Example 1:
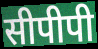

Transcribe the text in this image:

सीपीपी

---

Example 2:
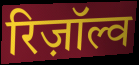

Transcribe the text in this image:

रिज़ॉल्व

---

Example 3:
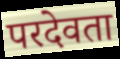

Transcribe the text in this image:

परदेवता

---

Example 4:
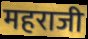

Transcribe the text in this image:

महराजी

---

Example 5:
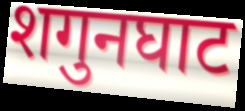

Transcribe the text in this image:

शगुनघाट